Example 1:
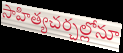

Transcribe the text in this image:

సాహిత్యచర్చల్లోనూ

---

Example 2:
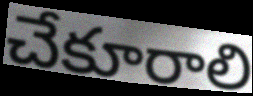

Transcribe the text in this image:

చేకూరాలి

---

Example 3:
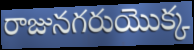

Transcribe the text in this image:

రాజునగరుయొక్క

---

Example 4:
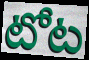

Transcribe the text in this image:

టోట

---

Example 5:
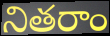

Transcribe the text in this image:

నితరాం